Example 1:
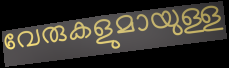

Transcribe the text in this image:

വേരുകളുമായുള്ള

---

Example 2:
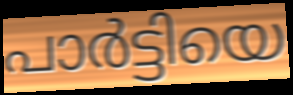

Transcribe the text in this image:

പാർട്ടിയെ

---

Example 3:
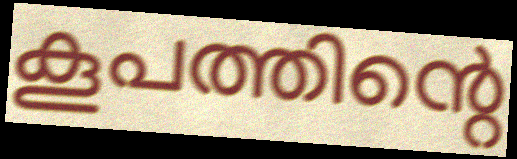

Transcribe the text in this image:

കൂപത്തിന്റെ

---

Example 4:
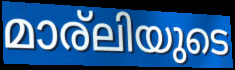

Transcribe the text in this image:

മാര്ലിയുടെ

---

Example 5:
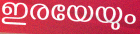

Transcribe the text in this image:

ഇരയേയും